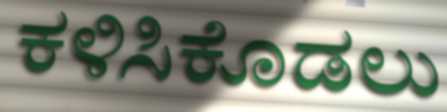
ಕಳಿಸಿಕೊಡಲು